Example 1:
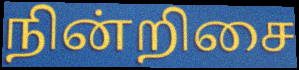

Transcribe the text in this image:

நின்றிசை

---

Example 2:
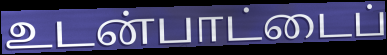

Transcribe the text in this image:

உடன்பாட்டைப்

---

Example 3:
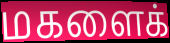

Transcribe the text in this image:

மகளைக்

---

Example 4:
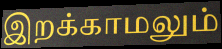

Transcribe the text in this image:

இறக்காமலும்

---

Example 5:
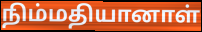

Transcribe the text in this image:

நிம்மதியானாள்